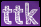
ttk